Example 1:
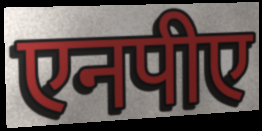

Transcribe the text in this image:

एनपीए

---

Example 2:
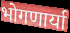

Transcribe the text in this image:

भोगणार्या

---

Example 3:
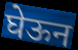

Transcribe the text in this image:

घेऊन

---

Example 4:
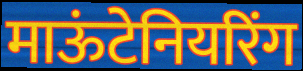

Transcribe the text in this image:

माऊंटेनियरिंग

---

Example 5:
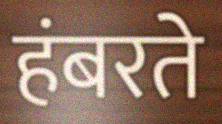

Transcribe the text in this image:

हंबरते